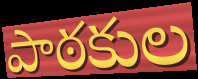
పాఠకుల